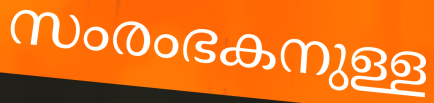
സംരംഭകനുള്ള